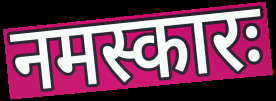
नमस्कारः